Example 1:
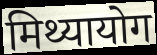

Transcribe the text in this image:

मिथ्यायोग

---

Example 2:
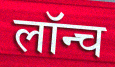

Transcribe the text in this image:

लॉन्‍च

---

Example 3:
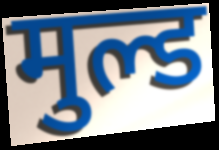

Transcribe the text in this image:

मुल्ड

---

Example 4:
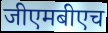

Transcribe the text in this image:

जीएमबीएच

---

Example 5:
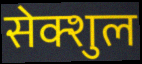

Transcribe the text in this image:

सेक्शुल